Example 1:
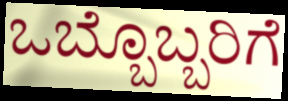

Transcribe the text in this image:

ಒಬ್ಬೊಬ್ಬರಿಗೆ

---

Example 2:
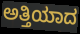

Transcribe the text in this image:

ಅತ್ತಿಯಾದ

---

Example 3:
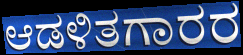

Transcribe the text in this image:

ಆಡಳಿತಗಾರರ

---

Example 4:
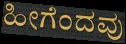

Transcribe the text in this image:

ಹೀಗೆಂದವು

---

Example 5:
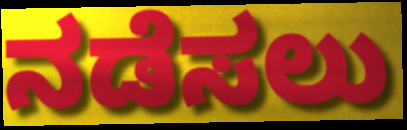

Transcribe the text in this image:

ನಡೆಸಲು